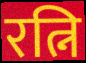
रत्नि